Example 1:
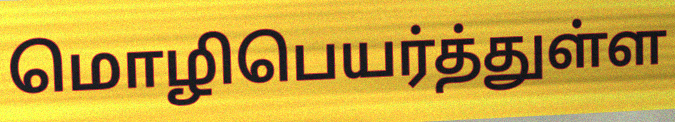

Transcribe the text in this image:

மொழிபெயர்த்துள்ள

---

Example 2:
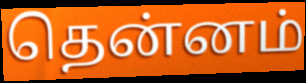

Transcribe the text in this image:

தென்னம்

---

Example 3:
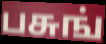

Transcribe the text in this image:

பசுங்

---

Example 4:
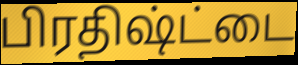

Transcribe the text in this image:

பிரதிஷ்ட்டை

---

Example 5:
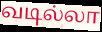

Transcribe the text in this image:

வடில்லா